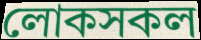
লোকসকল